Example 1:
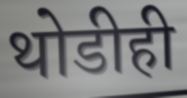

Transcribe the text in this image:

थोडीही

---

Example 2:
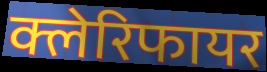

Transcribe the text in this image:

क्लेरिफायर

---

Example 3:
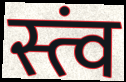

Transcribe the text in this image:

स्त्वं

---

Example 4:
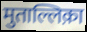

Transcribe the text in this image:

मुताल्लिक़ा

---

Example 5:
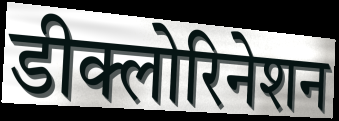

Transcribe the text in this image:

डीक्लोरिनेशन